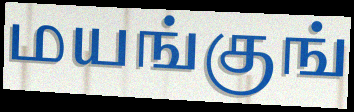
மயங்குங்